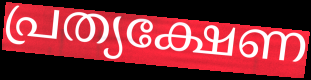
പ്രത്യക്ഷേണ